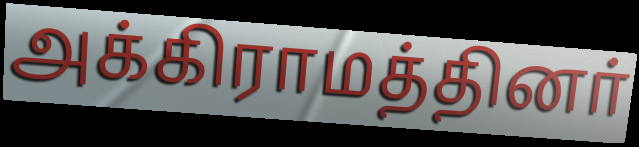
அக்கிராமத்தினர்